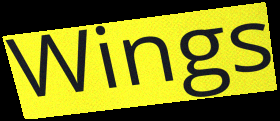
Wings